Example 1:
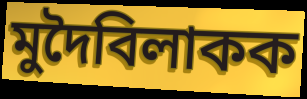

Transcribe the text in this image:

মুদৈবিলাকক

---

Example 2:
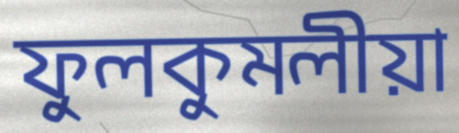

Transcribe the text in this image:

ফুলকুমলীয়া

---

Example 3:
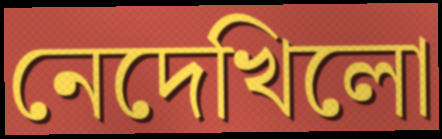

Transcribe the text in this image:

নেদেখিলো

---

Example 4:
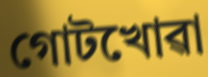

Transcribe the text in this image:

গোটখোৱা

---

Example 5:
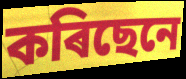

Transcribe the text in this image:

কৰিছেনে